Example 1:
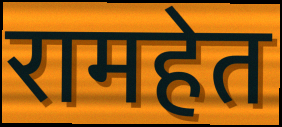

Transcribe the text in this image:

रामहेत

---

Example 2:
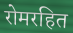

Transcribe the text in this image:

रोमरहित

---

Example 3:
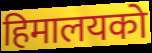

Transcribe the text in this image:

हिमालयको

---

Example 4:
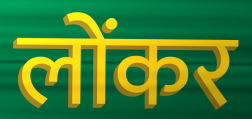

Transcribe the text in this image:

लोंकर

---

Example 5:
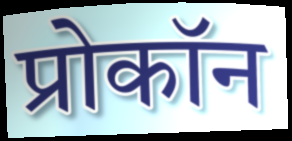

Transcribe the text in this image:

प्रोकॉन